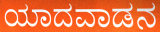
ಯಾದವಾಡನ